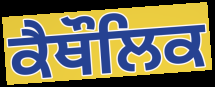
ਕੈਥੌਲਿਕ